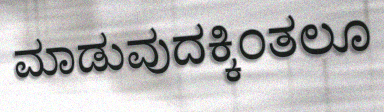
ಮಾಡುವುದಕ್ಕಿಂತಲೂ